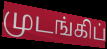
முடங்கிப்